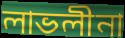
লাভলীনা